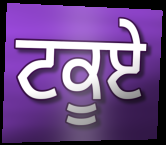
ਟਕੂਏ